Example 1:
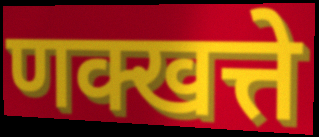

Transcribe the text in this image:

णक्खत्ते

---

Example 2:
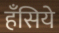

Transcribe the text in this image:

हँसिये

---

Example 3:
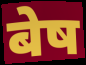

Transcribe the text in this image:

बेष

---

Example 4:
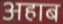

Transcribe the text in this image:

अहाब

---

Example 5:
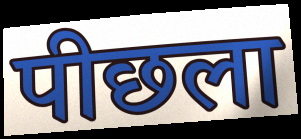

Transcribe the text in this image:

पीछला